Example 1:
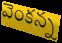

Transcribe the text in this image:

వెంకన్న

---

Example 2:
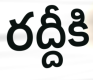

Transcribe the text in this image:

రద్దీకి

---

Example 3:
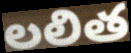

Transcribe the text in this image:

లలిత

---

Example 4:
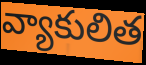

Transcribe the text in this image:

వ్యాకులిత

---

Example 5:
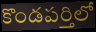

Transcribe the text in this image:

కొండపర్తిలో